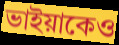
ভাইয়াকেও